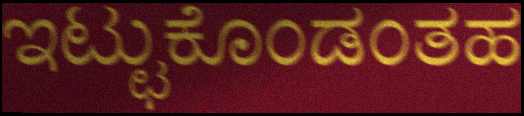
ಇಟ್ಟುಕೊಂಡಂತಹ